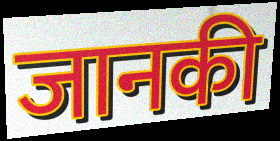
जानकी